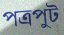
পত্রপুট